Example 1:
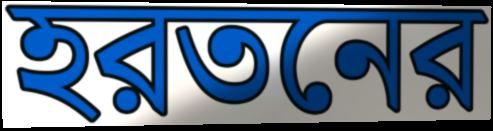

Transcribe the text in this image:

হরতনের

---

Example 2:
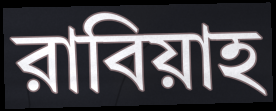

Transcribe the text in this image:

রাবিয়াহ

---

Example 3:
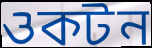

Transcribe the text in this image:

ওকটন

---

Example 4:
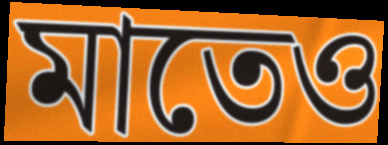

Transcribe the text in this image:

মাতেও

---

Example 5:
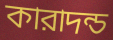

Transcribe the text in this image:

কারাদন্ড